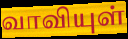
வாவியுள்